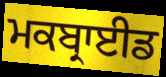
ਮਕਬ੍ਰਾਈਡ